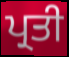
ਪ੍ਰਤੀ